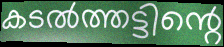
കടൽത്തട്ടിന്റെ